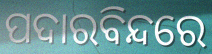
ପଦାରବିନ୍ଦରେ